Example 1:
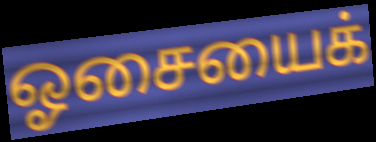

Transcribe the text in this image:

ஓசையைக்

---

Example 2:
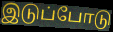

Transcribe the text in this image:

இடுப்போடு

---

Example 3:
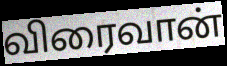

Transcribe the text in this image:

விரைவான்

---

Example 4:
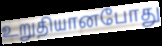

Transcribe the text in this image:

உறுதியானபோது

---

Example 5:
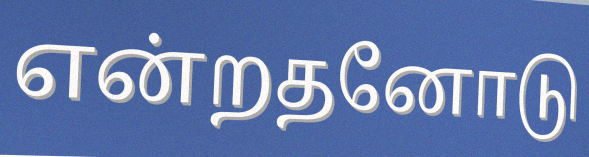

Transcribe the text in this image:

என்றதனோடு